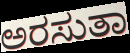
ಅರಸುತಾ